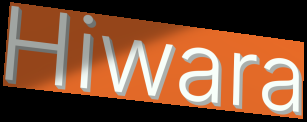
Hiwara